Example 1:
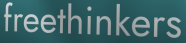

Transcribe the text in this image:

freethinkers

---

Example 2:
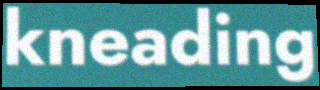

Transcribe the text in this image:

kneading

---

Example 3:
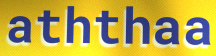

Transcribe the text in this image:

aththaa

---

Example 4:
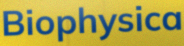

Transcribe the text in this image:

Biophysica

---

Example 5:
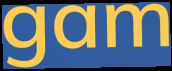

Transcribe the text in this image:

gam